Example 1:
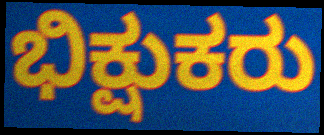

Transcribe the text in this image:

ಭಿಕ್ಷುಕರು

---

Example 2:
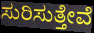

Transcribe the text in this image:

ಸುರಿಸುತ್ತೇವೆ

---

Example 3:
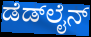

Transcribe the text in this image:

ಡೆಡ್‍ಲೈನ್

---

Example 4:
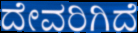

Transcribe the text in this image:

ದೇವರಿಗಿದೆ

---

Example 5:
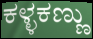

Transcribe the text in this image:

ಕಳ್ಳಕಣ್ಣು